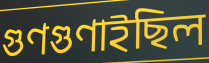
গুণগুণাইছিল